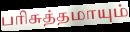
பரிசுத்தமாயும்